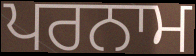
ਪਰਨਾਮ